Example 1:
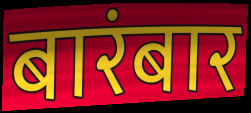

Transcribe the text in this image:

बारंबार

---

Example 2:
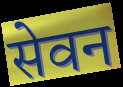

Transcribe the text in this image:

सेवन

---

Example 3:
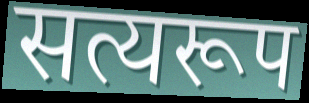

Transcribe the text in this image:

सत्यरूप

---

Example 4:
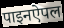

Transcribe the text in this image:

पाइनऐपल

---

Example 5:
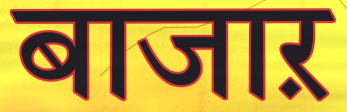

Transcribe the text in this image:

बाजाऱ